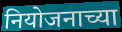
नियोजनाच्या